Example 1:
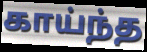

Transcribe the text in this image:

காய்ந்த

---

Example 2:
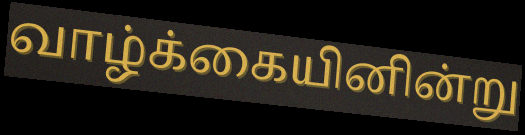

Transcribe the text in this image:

வாழ்க்கையினின்று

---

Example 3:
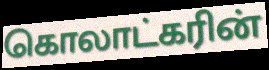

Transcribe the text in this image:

கொலாட்கரின்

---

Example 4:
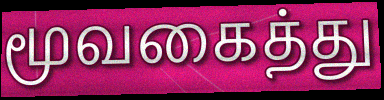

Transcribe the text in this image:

மூவகைத்து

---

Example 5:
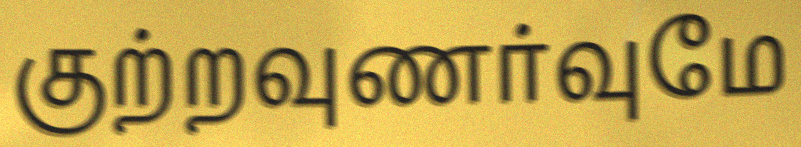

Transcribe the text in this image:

குற்றவுணர்வுமே